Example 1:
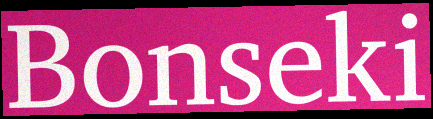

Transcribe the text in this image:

Bonseki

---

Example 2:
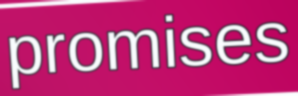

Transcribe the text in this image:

promises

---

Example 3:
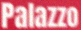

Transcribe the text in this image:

Palazzo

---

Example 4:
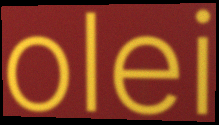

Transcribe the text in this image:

olei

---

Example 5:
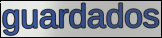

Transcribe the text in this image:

guardados